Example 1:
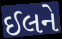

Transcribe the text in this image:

ઈલને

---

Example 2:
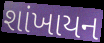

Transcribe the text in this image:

શાંખાયન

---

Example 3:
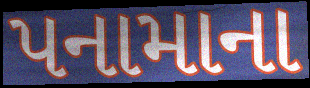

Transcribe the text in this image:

પનામાના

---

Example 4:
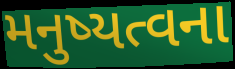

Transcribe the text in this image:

મનુષ્યત્વના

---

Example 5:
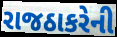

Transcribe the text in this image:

રાજઠાકરેની